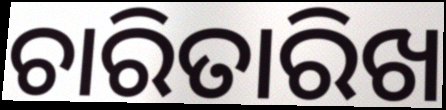
ଚାରିତାରିଖ